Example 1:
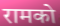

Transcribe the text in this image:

रामको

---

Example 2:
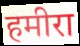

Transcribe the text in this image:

हमीरा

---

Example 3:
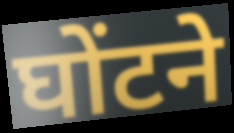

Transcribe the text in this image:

घोंटने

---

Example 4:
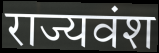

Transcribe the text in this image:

राज्यवंश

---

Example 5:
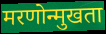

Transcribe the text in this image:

मरणोन्मुखता